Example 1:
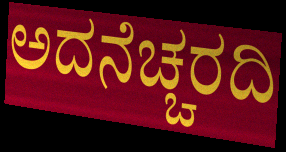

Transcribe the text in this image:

ಅದನೆಚ್ಚರದಿ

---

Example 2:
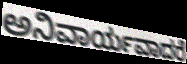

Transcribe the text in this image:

ಅನಿವಾರ್ಯವಾದರೆ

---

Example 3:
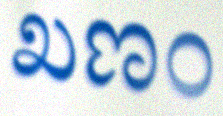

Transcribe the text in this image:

ಖಣಂ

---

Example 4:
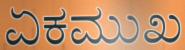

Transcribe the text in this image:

ಏಕಮುಖ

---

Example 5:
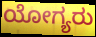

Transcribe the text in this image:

ಯೋಗ್ಯರು